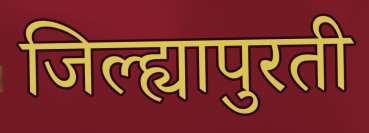
जिल्ह्यापुरती